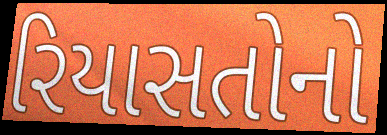
રિયાસતોનો